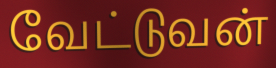
வேட்டுவன்